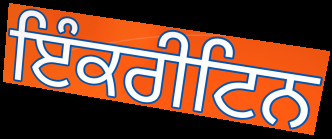
ਇੰਕਰੀਟਿਨ